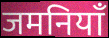
जमनियाँ